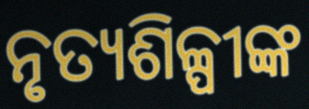
ନୃତ୍ୟଶିଳ୍ପୀଙ୍କ